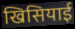
खिसियाई